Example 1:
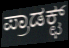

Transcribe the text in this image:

ಪ್ರಾಡಕ್ಟ್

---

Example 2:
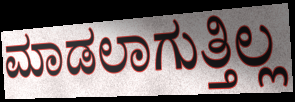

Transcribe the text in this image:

ಮಾಡಲಾಗುತ್ತಿಲ್ಲ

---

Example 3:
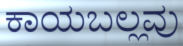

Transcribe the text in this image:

ಕಾಯಬಲ್ಲವು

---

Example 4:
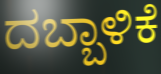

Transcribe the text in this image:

ದಬ್ಬಾಳಿಕೆ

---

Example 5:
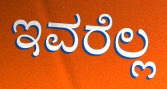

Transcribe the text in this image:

ಇವರೆಲ್ಲ